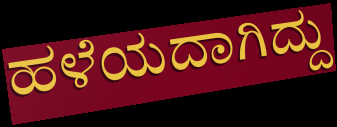
ಹಳೆಯದಾಗಿದ್ದು